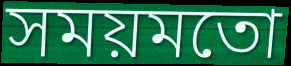
সময়মতো